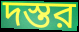
দস্তর